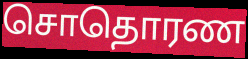
சொதொரண